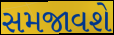
સમજાવશે